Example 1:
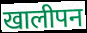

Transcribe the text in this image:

खालीपन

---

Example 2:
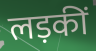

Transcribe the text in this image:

लड़कीं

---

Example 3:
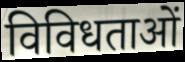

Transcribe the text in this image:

विविधताओं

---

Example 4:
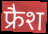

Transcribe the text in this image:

फ्रैश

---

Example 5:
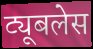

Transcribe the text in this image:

ट्यूबलेस